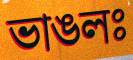
ভাঙলঃ